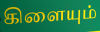
கிளையும்